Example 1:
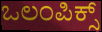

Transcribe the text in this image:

ಒಲಂಪಿಕ್ಸ್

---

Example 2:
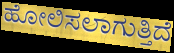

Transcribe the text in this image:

ಹೋಲಿಸಲಾಗುತ್ತಿದೆ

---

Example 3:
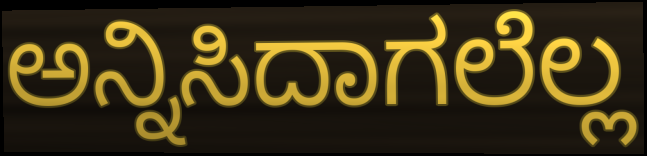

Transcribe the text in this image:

ಅನ್ನಿಸಿದಾಗಲೆಲ್ಲ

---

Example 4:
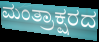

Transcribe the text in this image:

ಮಂತ್ರಾಕ್ಷರದ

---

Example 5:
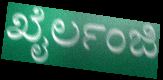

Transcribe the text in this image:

ಖೈರ್ಲಂಜಿ